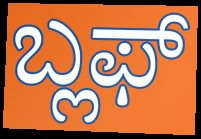
ಬ್ಲಫ್